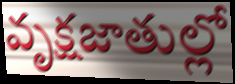
వృక్షజాతుల్లో